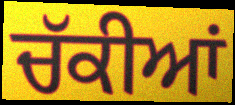
ਚੱਕੀਆਂ